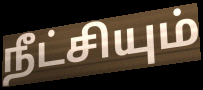
நீட்சியும்